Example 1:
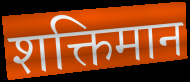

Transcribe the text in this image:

शक्तिमान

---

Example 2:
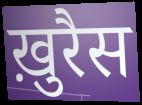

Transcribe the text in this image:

ख़ुरैस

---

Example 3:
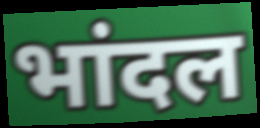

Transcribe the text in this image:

भांदल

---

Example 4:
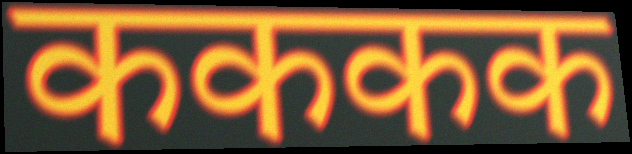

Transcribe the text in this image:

कककक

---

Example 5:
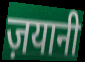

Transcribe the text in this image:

ज़यानी